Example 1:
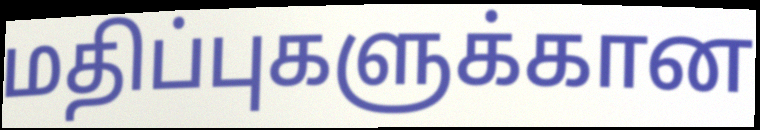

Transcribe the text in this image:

மதிப்புகளுக்கான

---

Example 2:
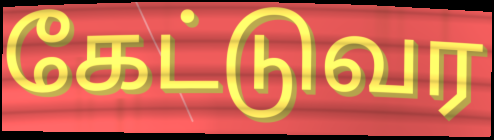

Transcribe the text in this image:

கேட்டுவர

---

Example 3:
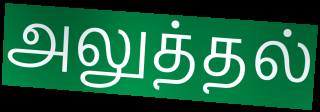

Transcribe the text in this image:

அலுத்தல்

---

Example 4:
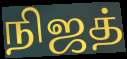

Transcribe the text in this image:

நிஜத்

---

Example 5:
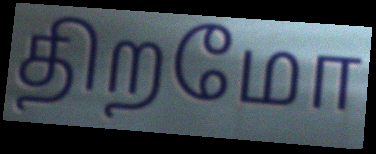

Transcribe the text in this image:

திறமோ